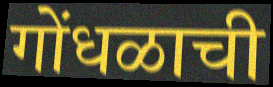
गोंधळाची